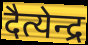
दैत्येन्द्र